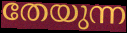
തേയുന്ന